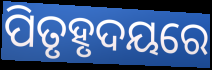
ପିତୃହୃଦୟରେ